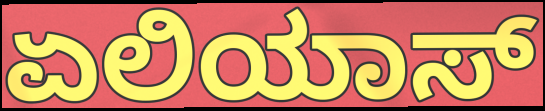
ಏಲಿಯಾಸ್